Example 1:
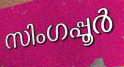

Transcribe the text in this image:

സിംഗപ്പൂർ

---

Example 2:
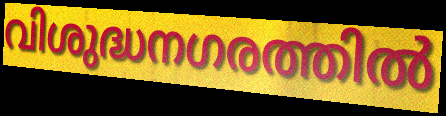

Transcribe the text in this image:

വിശുദ്ധനഗരത്തിൽ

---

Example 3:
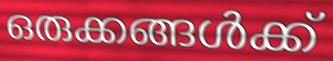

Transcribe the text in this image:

ഒരുക്കങ്ങൾക്ക്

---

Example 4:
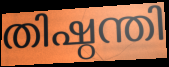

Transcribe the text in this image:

തിഷ്ഠന്തി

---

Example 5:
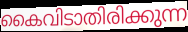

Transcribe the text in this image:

കൈവിടാതിരിക്കുന്ന